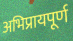
अभिप्रायपूर्ण